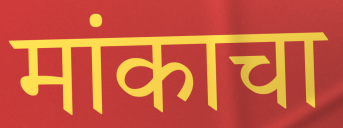
मांकाचा